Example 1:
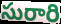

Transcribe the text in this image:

సురారి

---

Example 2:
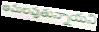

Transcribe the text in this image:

అమలవుతున్నాయని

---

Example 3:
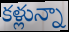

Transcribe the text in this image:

కళ్లున్నా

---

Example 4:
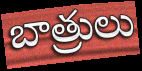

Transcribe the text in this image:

బాత్రులు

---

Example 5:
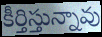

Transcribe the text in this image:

కీర్తిస్తున్నావు